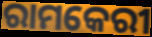
ରାମକେରୀ